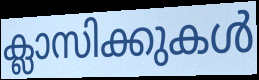
ക്ലാസിക്കുകൾ